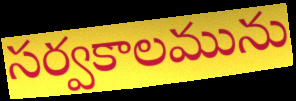
సర్వకాలమును